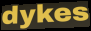
dykes